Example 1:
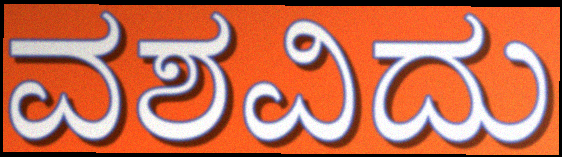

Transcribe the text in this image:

ವಶವಿದು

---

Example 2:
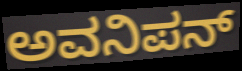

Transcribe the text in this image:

ಅವನಿಪನ್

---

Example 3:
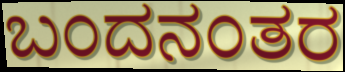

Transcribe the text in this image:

ಬಂದನಂತರ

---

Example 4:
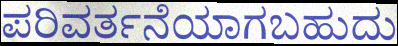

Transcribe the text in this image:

ಪರಿವರ್ತನೆಯಾಗಬಹುದು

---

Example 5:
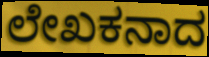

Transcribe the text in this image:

ಲೇಖಕನಾದ